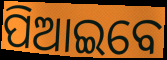
ପିଆଇବେ